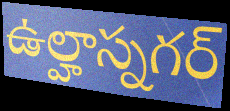
ఉల్హాస్నగర్